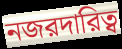
নজরদারিত্ব